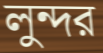
লুন্দর